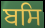
ਬਸਿ